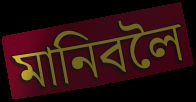
মানিবলৈ